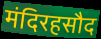
मंदिरहसौद